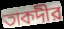
তাকদীর